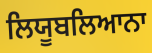
ਲਿਯੂਬਲਿਆਨਾ